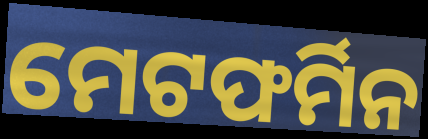
ମେଟଫର୍ମିନ